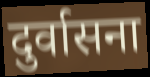
दुर्वासना